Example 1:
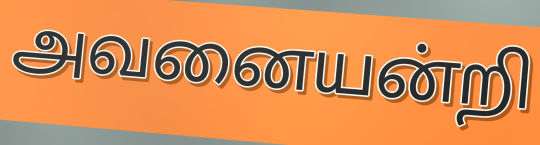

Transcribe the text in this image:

அவனையன்றி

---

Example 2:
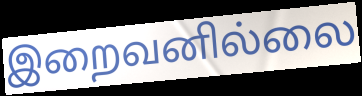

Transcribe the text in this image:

இறைவனில்லை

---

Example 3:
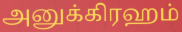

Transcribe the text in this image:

அனுக்கிரஹம்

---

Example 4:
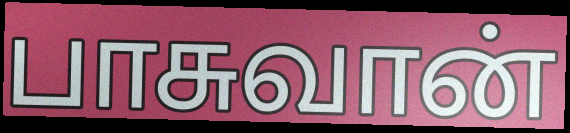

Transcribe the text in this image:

பாசுவான்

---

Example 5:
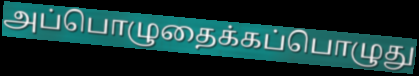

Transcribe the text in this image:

அப்பொழுதைக்கப்பொழுது